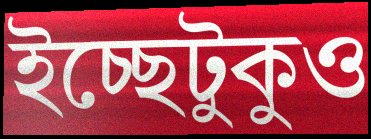
ইচ্ছেটুকুও